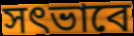
সৎভাবে